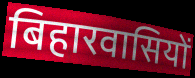
बिहारवासियों